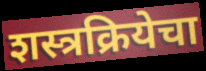
शस्त्रक्रियेचा